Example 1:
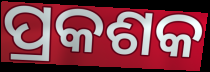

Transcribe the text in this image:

ପ୍ରକଶକ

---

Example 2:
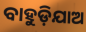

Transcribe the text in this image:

ବାହୁଡ଼ିଯାଅ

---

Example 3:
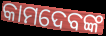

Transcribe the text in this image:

କାମଦେବଙ୍କ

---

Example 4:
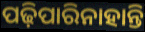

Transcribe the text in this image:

ପଢ଼ିପାରିନାହାନ୍ତି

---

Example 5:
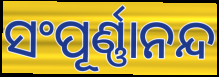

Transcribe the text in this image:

ସଂପୂର୍ଣ୍ଣାନନ୍ଦ